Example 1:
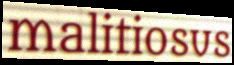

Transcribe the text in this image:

malitiosus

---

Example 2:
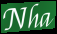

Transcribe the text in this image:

Nha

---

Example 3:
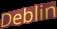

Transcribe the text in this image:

Deblin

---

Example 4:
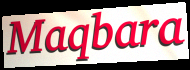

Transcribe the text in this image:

Maqbara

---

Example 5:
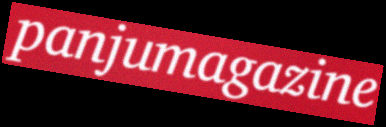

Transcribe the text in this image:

panjumagazine